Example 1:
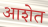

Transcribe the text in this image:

आशेत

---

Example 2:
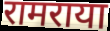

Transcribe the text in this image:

रामराया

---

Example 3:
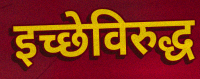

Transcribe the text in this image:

इच्छेविरुद्ध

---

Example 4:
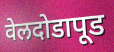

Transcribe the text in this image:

वेलदोडापूड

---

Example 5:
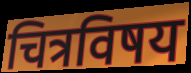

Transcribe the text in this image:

चित्रविषय